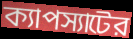
ক্যাপস্যাটের